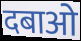
दबाओ